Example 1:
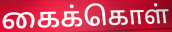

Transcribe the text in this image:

கைக்கொள்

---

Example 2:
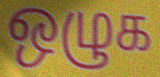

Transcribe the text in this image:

ஒழுக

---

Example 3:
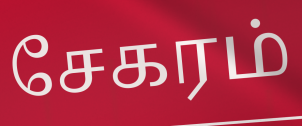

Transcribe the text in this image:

சேகரம்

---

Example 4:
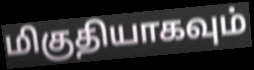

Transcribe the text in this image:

மிகுதியாகவும்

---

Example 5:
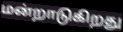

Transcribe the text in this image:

மன்றாடுகிறது